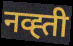
नव्ह्ती